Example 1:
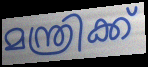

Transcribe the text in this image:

മന്ത്രിക്ക്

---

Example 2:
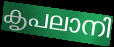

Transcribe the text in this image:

കൃപലാനി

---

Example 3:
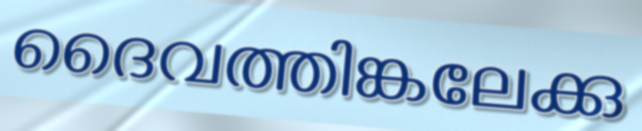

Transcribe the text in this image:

ദൈവത്തിങ്കലേക്കു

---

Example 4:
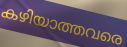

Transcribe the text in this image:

കഴിയാത്തവരെ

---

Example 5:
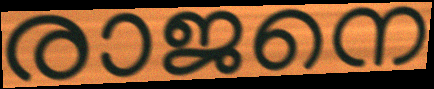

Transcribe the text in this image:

രാജനെ